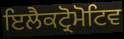
ਇਲੈਕਟ੍ਰੋਮੋਟਿਵ